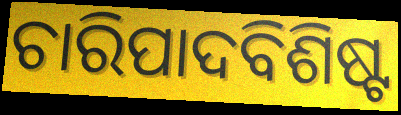
ଚାରିପାଦବିଶିଷ୍ଟ